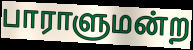
பாராளுமன்ற